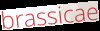
brassicae